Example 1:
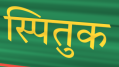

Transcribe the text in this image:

स्पितुक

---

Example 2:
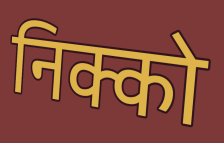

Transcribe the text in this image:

निक्को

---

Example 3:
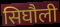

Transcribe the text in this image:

सिघौली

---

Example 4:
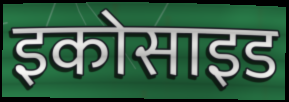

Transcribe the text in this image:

इकोसाइड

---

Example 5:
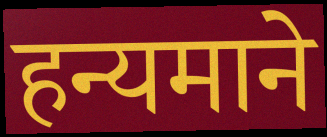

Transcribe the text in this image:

हन्यमाने